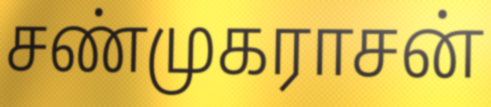
சண்முகராசன்